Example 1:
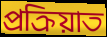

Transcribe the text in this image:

প্ৰক্ৰিয়াত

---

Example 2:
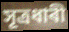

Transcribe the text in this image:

সূত্ৰধাৰী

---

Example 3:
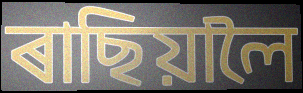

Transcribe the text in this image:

ৰাছিয়ালৈ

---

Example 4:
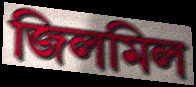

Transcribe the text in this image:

জিলমিল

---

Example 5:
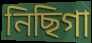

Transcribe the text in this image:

নিছিগা